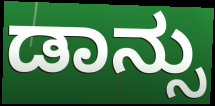
ಡಾನ್ಸು